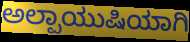
ಅಲ್ಪಾಯುಷಿಯಾಗಿ